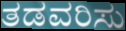
ತಡವರಿಸು